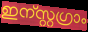
ഇന്സ്റ്റഗ്രാം